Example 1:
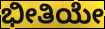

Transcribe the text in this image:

ಭೀತಿಯೇ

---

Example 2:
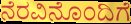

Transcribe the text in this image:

ನೆರವಿನೊಂದಿಗೆ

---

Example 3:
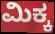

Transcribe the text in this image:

ಮಿಕ್ಕ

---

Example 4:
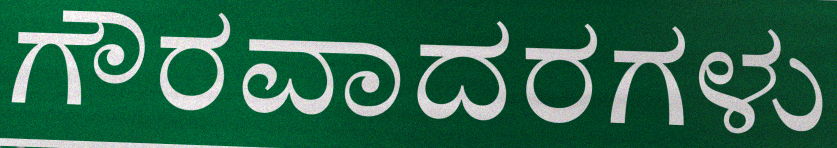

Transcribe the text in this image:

ಗೌರವಾದರಗಳು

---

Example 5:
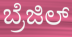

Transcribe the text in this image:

ಬ್ರೆಜಿಲ್